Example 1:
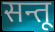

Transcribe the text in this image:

सन्तू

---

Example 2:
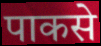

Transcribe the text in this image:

पाकसे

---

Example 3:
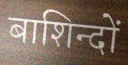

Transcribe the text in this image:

बाशिन्दों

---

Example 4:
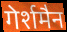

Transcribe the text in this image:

गेर्शमैन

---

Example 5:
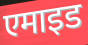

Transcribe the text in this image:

एमाइड